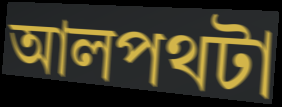
আলপথটা